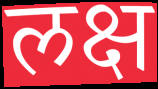
लक्ष